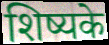
शिष्यके